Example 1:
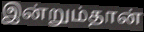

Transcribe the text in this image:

இன்றும்தான்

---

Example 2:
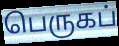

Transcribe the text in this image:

பெருகப்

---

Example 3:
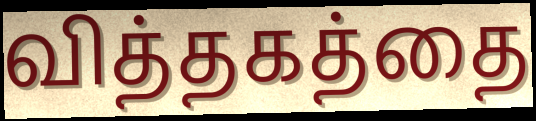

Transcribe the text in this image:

வித்தகத்தை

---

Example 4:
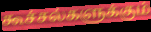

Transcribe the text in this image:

கூச்சல்களுக்கும்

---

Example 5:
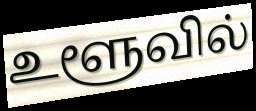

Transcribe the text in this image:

உளூவில்